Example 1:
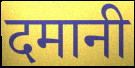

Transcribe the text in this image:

दमानी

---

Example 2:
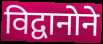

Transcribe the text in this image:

विद्वानोने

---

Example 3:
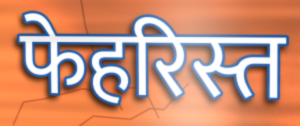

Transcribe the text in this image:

फेहरिस्‍त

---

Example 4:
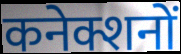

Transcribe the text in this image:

कनेक्शनों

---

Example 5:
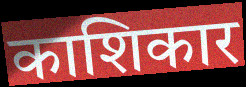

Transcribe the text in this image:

काशिकार